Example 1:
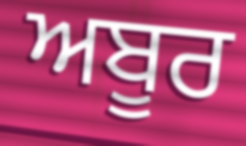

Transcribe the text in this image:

ਅਬੂਰ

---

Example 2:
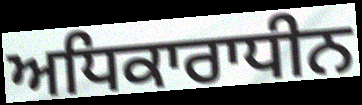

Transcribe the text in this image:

ਅਧਿਕਾਰਾਧੀਨ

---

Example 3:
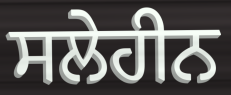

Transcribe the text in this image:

ਸਲੇਹੀਨ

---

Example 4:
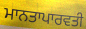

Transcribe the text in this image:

ਮਾਨਤਾਪਾਰਵਤੀ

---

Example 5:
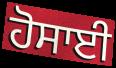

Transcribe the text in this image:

ਹੋਸਾਈ